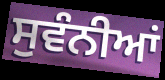
ਸੁਵੰਨੀਆਂ